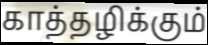
காத்தழிக்கும்